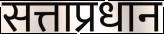
सत्ताप्रधान